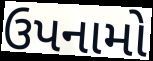
ઉપનામો